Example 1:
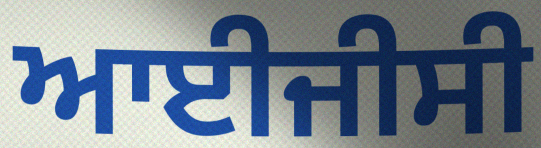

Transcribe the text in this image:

ਆਈਜੀਸੀ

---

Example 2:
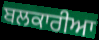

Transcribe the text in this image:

ਬਲਕਾਰੀਆ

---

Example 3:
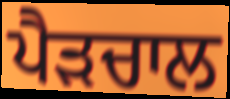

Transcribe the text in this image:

ਪੈੜਚਾਲ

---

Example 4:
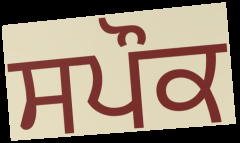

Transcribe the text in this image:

ਸਪੌਕ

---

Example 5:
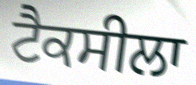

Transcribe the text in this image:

ਟੈਕਸੀਲਾ